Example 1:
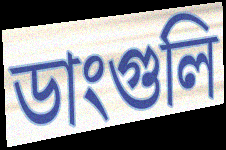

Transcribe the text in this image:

ডাংগুলি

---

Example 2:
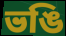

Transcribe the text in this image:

ভঙি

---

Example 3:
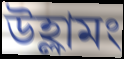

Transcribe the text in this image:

উহ্লামং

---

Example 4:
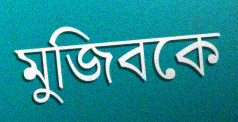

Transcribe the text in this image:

মুজিবকে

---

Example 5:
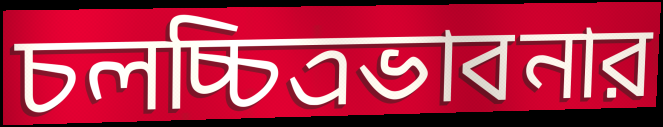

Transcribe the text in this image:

চলচ্চিত্রভাবনার